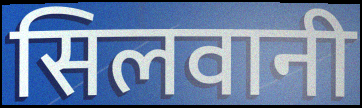
सिलवानी